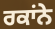
ਰਕਾਂਨੇ